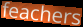
feachers